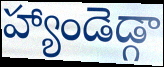
హ్యాండెడ్గా